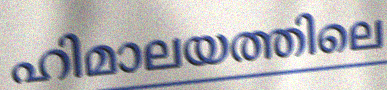
ഹിമാലയത്തിലെ